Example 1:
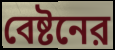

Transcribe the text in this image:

বেষ্টনের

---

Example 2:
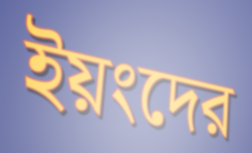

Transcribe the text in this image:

ইয়ংদের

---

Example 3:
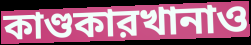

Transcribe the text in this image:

কাণ্ডকারখানাও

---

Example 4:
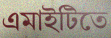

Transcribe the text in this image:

এমাইটিতে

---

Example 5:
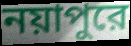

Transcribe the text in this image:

নয়াপুরে